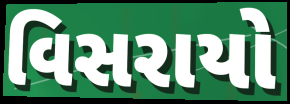
વિસરાયો